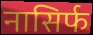
नासिर्फ